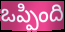
ఒప్పింది